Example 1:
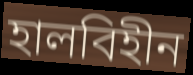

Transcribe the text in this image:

হালবিহীন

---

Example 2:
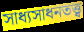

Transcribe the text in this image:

সাধ্যসাধনতত্ত্ব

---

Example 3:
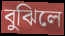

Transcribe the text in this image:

বুঝিলে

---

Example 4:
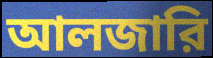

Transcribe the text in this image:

আলজারি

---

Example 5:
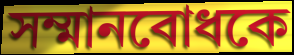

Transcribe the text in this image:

সম্মানবোধকে